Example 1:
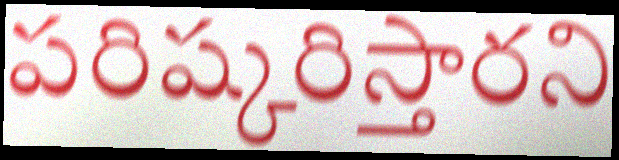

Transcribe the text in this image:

పరిష్కరిస్తారని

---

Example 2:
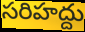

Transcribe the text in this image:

సరిహద్దు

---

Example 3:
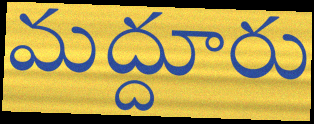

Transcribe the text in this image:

మద్దూరు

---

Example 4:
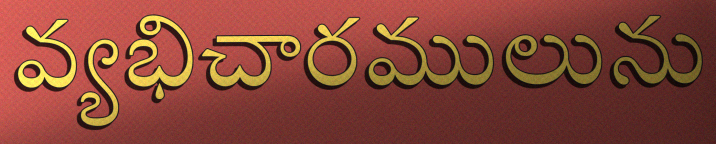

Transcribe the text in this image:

వ్యభిచారములును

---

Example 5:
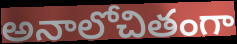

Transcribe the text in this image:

అనాలోచితంగా